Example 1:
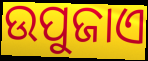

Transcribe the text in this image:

ଉପୁଜାଏ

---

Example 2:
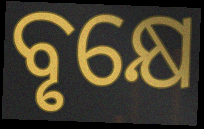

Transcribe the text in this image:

ବୃକ୍ଷେ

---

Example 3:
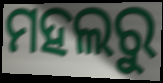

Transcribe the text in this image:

ମହଲରୁ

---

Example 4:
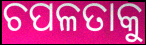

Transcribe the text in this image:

ଚପଳତାକୁ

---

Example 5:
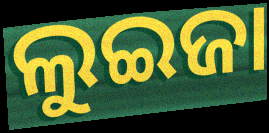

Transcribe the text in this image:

ଲୁଇଜା